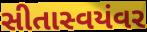
સીતાસ્વયંવર